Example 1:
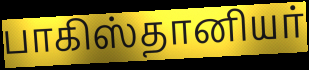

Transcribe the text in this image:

பாகிஸ்தானியர்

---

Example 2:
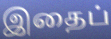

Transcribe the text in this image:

இதைப்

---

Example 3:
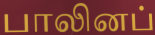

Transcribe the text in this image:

பாலினப்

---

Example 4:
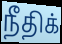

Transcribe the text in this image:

நீதிக்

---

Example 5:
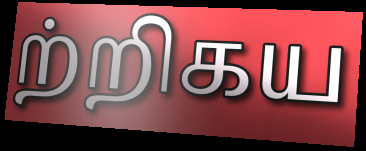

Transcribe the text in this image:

ற்றிகய